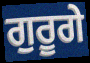
ਗੁਰੂਗੇ